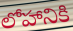
లోహానికి